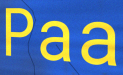
Paa